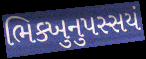
ભિક્ખુનુપસ્સયં